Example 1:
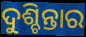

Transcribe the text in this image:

ଦୁଶ୍ଚିନ୍ତାର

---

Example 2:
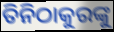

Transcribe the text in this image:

ତିନିଠାକୁରଙ୍କୁ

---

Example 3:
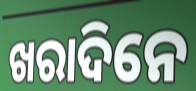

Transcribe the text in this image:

ଖରାଦିନେ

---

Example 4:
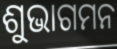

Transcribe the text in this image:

ଶୁଭାଗମନ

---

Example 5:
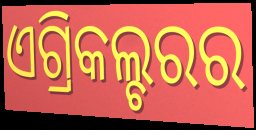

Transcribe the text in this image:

ଏଗ୍ରିକଲ୍ଚରର